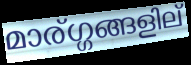
മാര്ഗ്ഗങ്ങളില്